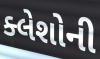
ક્લેશોની